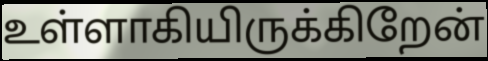
உள்ளாகியிருக்கிறேன்